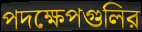
পদক্ষেপগুলির